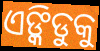
ଏଙ୍କିଡୁକୁ